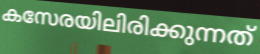
കസേരയിലിരിക്കുന്നത്